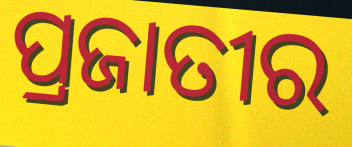
ପ୍ରଜାତୀର